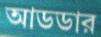
আডডার